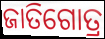
ଜାତିଗୋତ୍ର